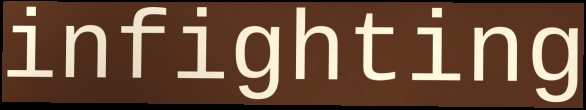
infighting